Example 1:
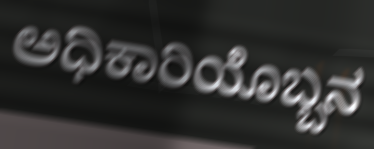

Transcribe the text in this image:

ಅಧಿಕಾರಿಯೊಬ್ಬನ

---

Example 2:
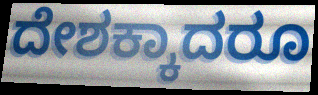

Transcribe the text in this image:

ದೇಶಕ್ಕಾದರೂ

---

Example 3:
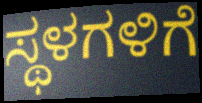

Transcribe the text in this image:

ಸ್ಥಳಗಳಿಗೆ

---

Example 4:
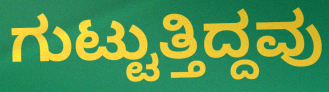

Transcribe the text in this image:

ಗುಟ್ಟುತ್ತಿದ್ದವು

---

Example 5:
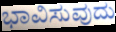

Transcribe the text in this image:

ಭಾವಿಸುವುದು